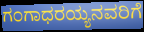
ಗಂಗಾಧರಯ್ಯನವರಿಗೆ